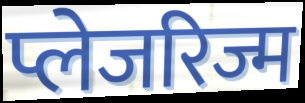
प्लेजरिज्म